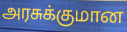
அரசுக்குமான